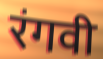
रंगवी